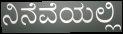
ನಿನೆವೆಯಲ್ಲಿ